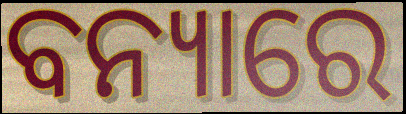
ବନ୍ୟାରେ